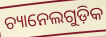
ଚ୍ୟାନେଲଗୁଡ଼ିକ